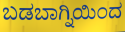
ಬಡಬಾಗ್ನಿಯಿಂದ